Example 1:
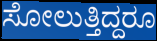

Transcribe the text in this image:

ಸೋಲುತ್ತಿದ್ದರೂ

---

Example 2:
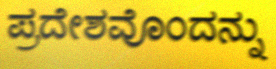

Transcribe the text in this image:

ಪ್ರದೇಶವೊಂದನ್ನು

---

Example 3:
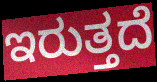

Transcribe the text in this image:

ಇರುತ್ತದೆ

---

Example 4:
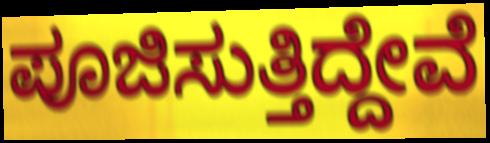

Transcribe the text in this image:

ಪೂಜಿಸುತ್ತಿದ್ದೇವೆ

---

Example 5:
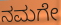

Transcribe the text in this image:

ನಮಗೇ